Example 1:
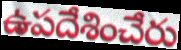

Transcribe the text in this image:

ఉపదేశించేరు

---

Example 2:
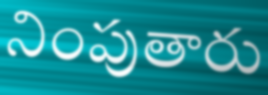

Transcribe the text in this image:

నింపుతారు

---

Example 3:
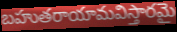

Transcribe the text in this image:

బహుతరాయామవిస్తారమై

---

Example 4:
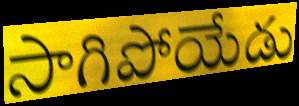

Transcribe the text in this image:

సాగిపోయేడు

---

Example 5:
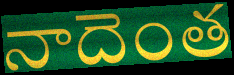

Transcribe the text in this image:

నాదెంత